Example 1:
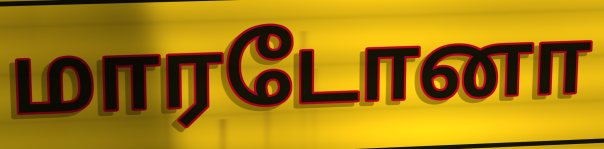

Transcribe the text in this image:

மாரடோனா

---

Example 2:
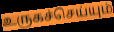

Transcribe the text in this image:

உருகச்செய்யும்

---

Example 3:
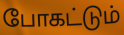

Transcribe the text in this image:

போகட்டும்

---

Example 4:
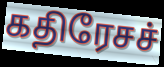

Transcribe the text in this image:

கதிரேசச்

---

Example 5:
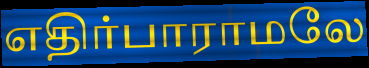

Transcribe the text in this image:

எதிர்பாராமலே